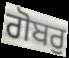
ਗੋਬਰੁ